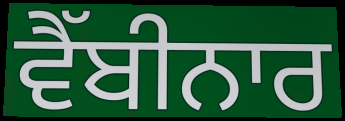
ਵੈੱਬੀਨਾਰ